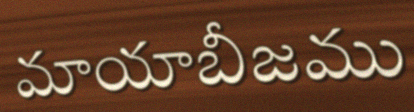
మాయాబీజము